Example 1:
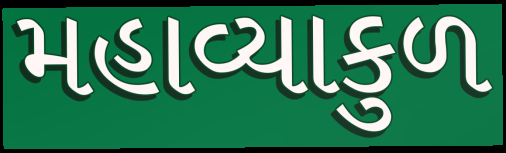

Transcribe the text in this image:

મહાવ્યાકુળ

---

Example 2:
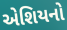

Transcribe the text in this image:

એશિયનો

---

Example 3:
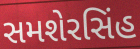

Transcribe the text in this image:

સમશેરસિંહ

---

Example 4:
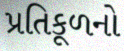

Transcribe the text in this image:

પ્રતિકૂળનો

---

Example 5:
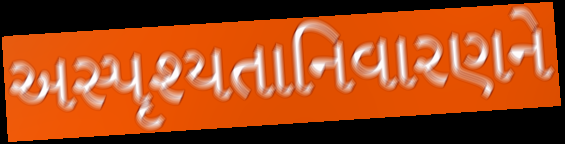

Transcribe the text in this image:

અસ્પૃશ્યતાનિવારણને